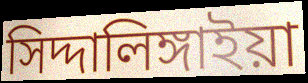
সিদ্দালিঙ্গাইয়া